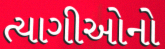
ત્યાગીઓનો